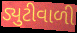
ડ્યુટીવાળી